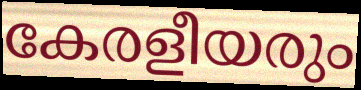
കേരളീയരും